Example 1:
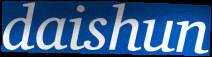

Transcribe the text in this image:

daishun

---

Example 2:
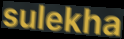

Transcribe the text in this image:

sulekha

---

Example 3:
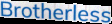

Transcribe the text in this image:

Brotherless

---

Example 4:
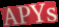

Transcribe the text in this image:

APYs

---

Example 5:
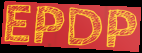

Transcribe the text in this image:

EPDP